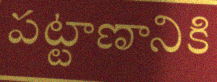
పట్టాణానికి